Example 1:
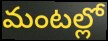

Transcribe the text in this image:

మంటల్లో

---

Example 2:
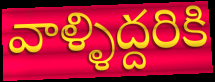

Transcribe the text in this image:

వాళ్ళిద్దరికి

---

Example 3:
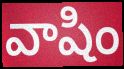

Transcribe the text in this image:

వాషిం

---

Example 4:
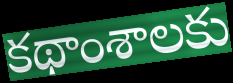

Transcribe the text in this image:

కథాంశాలకు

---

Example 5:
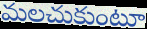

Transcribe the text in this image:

మలచుకుంటూ